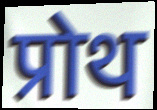
प्रोथ